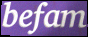
befam